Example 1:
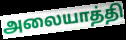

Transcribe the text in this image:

அலையாத்தி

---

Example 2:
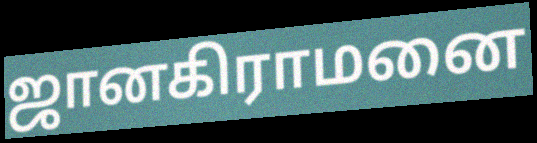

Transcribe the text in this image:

ஜானகிராமனை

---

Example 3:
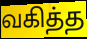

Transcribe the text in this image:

வகித்த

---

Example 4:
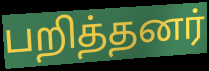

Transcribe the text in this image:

பறித்தனர்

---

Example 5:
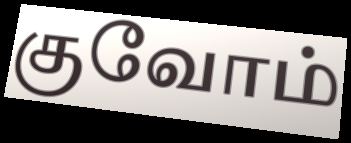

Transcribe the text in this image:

குவோம்